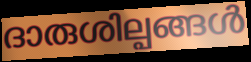
ദാരുശില്പങ്ങൾ